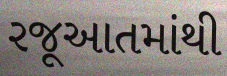
રજૂઆતમાંથી